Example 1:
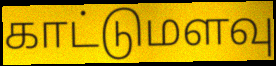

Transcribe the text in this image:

காட்டுமளவு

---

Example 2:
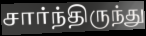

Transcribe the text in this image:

சார்ந்திருந்து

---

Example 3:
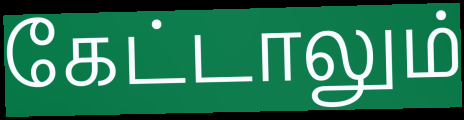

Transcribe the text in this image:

கேட்டாலும்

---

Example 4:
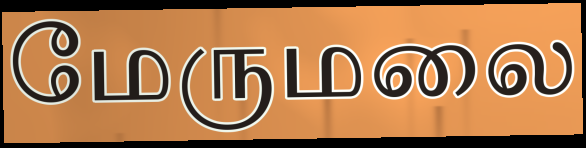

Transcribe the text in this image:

மேருமலை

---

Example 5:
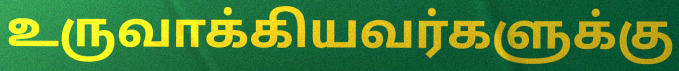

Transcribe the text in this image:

உருவாக்கியவர்களுக்கு